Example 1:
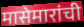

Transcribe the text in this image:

मासेमारांची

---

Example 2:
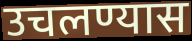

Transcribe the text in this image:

उचलण्यास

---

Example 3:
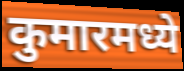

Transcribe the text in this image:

कुमारमध्ये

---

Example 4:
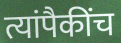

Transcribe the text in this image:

त्यांपैकींच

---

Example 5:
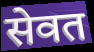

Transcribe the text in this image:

सेवत